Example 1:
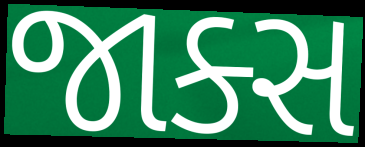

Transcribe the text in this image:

જાક્સ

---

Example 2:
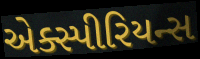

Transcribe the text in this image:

એક્સ્પીરિયન્સ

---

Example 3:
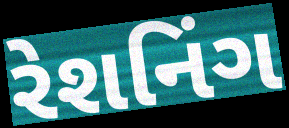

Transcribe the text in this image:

રેશનિંગ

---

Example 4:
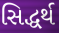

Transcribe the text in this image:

સિદ્ધર્થ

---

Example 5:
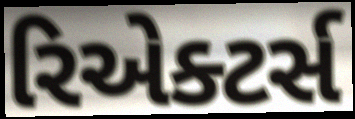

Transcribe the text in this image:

રિએક્ટર્સ